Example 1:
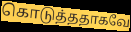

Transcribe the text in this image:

கொடுத்ததாகவே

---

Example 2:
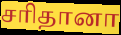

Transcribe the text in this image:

சரிதானா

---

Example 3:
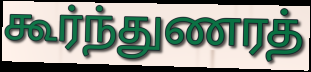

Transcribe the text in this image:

கூர்ந்துணரத்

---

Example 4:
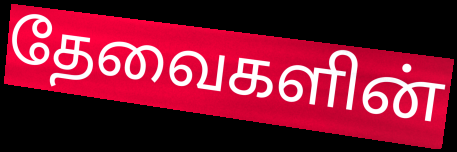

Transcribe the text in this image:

தேவைகளின்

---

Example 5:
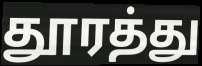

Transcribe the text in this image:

தூரத்து